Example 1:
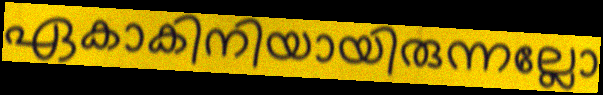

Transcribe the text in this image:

ഏകാകിനിയായിരുന്നല്ലോ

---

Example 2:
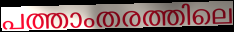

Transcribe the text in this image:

പത്താംതരത്തിലെ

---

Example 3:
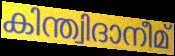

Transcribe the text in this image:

കിന്ത്വിദാനീമ്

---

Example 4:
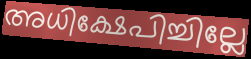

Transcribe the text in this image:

അധിക്ഷേപിച്ചില്ലേ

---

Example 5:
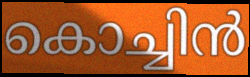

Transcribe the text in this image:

കൊച്ചിൻ